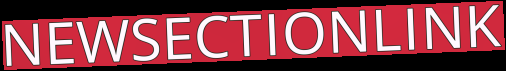
NEWSECTIONLINK